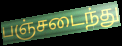
பஞ்சடைந்து